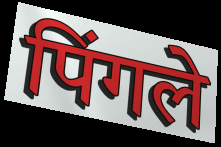
पिंगले